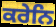
ਕਰੇਨਿ